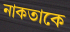
নাকতাকে